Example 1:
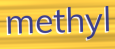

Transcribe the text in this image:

methyl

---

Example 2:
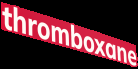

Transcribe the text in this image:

thromboxane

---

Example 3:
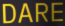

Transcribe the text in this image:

DARE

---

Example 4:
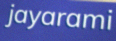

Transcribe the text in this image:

jayarami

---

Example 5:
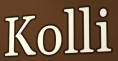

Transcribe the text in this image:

Kolli